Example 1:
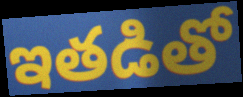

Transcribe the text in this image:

ఇతడితో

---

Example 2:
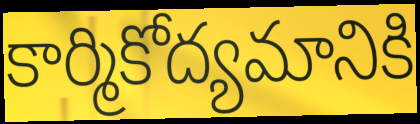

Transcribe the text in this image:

కార్మికోద్యమానికి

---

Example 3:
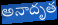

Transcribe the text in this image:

అనాదృత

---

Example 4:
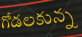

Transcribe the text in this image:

గోడలకున్న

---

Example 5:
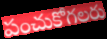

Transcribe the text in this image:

పంచుకోగలరు